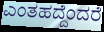
ಎಂತಹದ್ದೆಂದರೆ